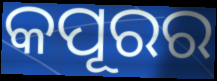
କପୂରର